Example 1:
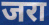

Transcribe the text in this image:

जरा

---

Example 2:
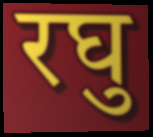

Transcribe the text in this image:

रघु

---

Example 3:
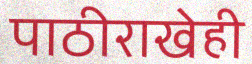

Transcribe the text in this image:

पाठीराखेही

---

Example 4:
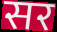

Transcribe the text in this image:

सर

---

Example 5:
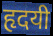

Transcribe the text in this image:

हृदयी